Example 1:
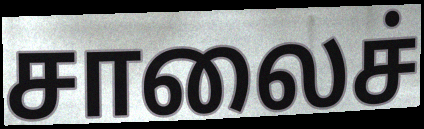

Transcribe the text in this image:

சாலைச்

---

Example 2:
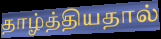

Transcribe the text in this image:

தாழ்த்தியதால்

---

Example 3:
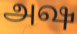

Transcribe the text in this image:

அஷ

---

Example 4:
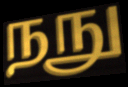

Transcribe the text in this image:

நநு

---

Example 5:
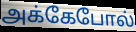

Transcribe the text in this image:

அக்கேபோல்